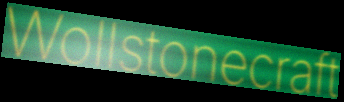
Wollstonecraft